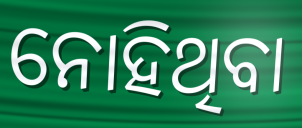
ନୋହିଥିବା